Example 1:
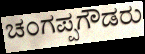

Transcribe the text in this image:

ಚಂಗಪ್ಪಗೌಡರು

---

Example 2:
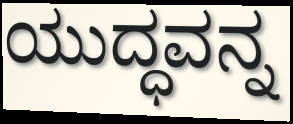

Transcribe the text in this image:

ಯುದ್ಧವನ್ನ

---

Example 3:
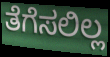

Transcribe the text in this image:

ತೆಗೆಸಲಿಲ್ಲ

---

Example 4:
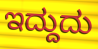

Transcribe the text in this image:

ಇದ್ದುದು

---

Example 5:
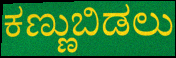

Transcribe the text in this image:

ಕಣ್ಣುಬಿಡಲು